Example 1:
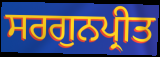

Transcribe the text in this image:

ਸਰਗੁਨਪ੍ਰੀਤ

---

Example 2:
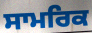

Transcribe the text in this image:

ਸਾਮਰਿਕ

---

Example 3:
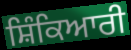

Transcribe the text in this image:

ਸ਼ਿੰਕਿਆਰੀ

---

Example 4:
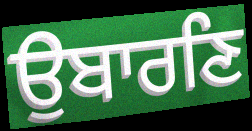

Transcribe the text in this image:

ਉਬਾਰਣਿ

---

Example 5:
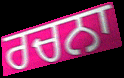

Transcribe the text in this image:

ਰਚਨਾ